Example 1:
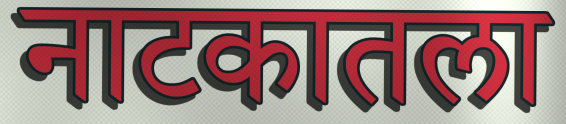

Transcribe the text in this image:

नाटकातला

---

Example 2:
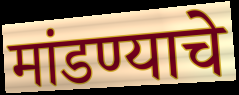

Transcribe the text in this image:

मांडण्याचे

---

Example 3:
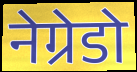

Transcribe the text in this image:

नेग्रेडो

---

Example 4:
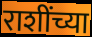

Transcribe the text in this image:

राशींच्या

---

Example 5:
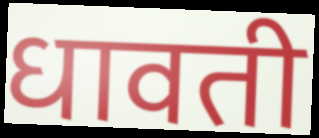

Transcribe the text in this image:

धावती